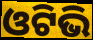
ଓଟିଭି